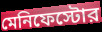
মেনিফেস্টোর